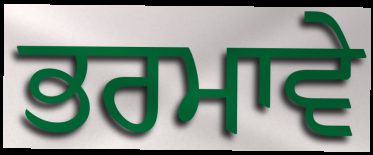
ਭਰਮਾਵੇ